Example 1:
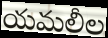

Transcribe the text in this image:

యమలీల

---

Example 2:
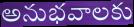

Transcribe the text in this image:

అనుభవాలకు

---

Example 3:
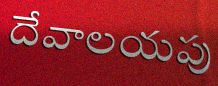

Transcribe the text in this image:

దేవాలయపు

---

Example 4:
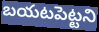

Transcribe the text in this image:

బయటపెట్టని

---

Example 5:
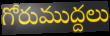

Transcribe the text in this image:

గోరుముద్దలు